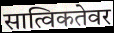
सात्विकतेवर